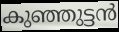
കുഞ്ഞുട്ടൻ